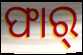
ଫାର୍